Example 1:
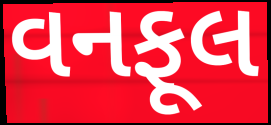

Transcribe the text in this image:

વનફૂલ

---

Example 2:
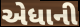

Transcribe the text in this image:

એધાની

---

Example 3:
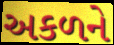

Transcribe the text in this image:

અકળને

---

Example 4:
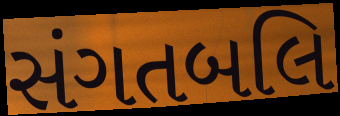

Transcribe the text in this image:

સંગતબલિ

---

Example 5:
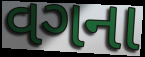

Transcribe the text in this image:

વગના